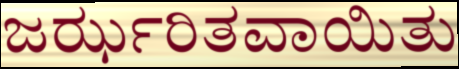
ಜರ್ಝರಿತವಾಯಿತು